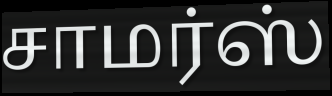
சாமர்ஸ்